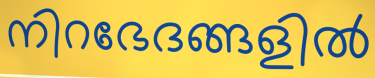
നിറഭേദങ്ങളിൽ